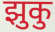
झुकु